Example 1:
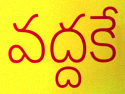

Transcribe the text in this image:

వద్దకే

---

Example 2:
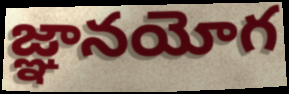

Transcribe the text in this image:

జ్ఞానయోగ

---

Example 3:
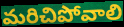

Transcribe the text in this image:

మరిచిపోవాలి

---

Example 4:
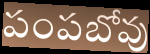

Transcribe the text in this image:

పంపబోవు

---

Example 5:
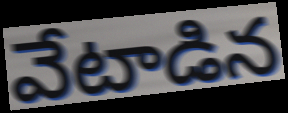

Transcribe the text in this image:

వేటాడిన